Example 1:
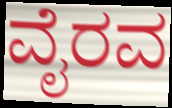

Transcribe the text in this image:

ವೈರವ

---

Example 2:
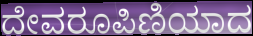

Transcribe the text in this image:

ದೇವರೂಪಿಣಿಯಾದ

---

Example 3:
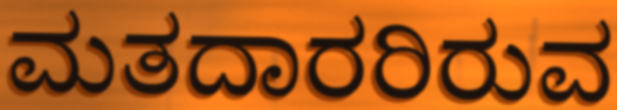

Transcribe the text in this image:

ಮತದಾರರಿರುವ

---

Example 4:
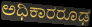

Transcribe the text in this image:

ಅಧಿಕಾರರೂಢ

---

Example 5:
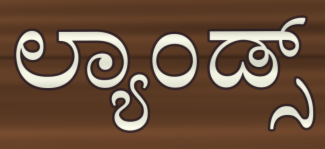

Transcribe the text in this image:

ಲ್ಯಾಂಡ್ಸ್